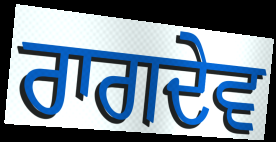
ਰਾਗਦੇਵ